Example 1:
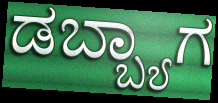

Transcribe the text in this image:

ಡಬ್ಬ್ಯಾಗ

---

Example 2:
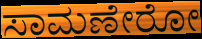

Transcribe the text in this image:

ಸಾಮಣೇರೋ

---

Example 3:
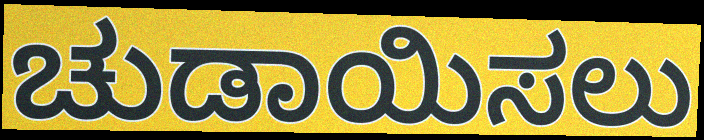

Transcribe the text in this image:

ಚುಡಾಯಿಸಲು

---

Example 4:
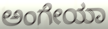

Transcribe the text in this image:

ಅಂಗೇಯಾ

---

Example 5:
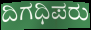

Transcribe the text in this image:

ದಿಗಧಿಪರು